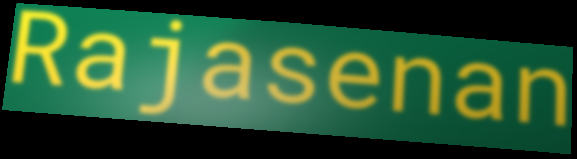
Rajasenan